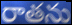
రాతను